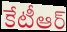
కేటీఆర్